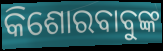
କିଶୋରବାବୁଙ୍କ